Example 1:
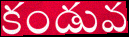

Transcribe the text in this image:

కండువ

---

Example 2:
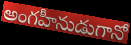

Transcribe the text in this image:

అంగహీనుడుగానో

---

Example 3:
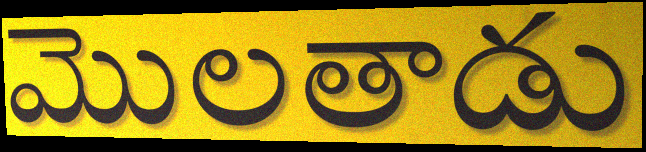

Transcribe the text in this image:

మొలతాడు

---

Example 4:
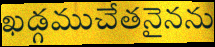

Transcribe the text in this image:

ఖడ్గముచేతనైనను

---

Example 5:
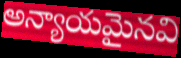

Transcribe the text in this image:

అన్యాయమైనవి